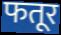
फतूर